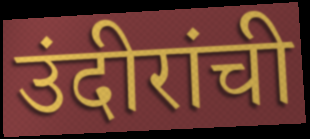
उंदीरांची